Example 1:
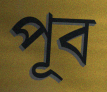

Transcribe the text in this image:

পূব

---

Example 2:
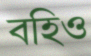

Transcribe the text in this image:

বহিও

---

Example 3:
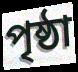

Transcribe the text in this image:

পৃষ্ঠা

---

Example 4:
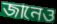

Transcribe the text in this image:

জানেও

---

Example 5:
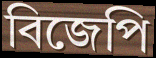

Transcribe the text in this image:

বিজেপি